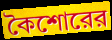
কৈশোরের